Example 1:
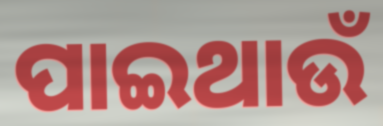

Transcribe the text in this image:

ପାଇଥାଉଁ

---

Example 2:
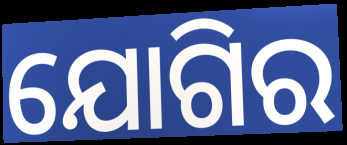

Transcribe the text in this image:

ଯୋଗିର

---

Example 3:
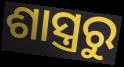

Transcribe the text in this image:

ଶାସ୍ତ୍ରରୁ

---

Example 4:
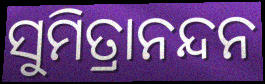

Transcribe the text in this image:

ସୁମିତ୍ରାନନ୍ଦନ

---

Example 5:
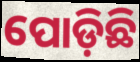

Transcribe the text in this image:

ପୋଡ଼ିଛି